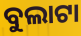
ବୁଲାଟା